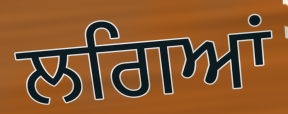
ਲਗਿਆਂ